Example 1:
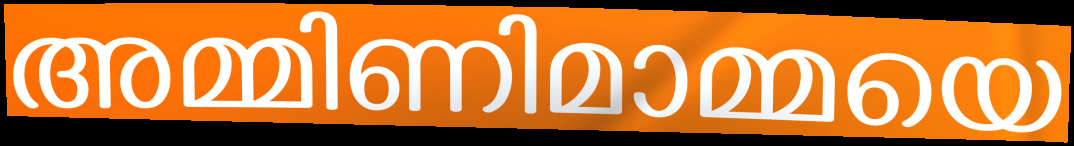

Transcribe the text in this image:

അമ്മിണിമാമ്മയെ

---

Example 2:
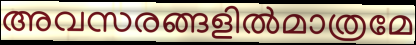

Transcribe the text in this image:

അവസരങ്ങളിൽമാത്രമേ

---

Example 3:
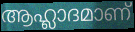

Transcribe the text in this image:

ആഹ്ലാദമാണ്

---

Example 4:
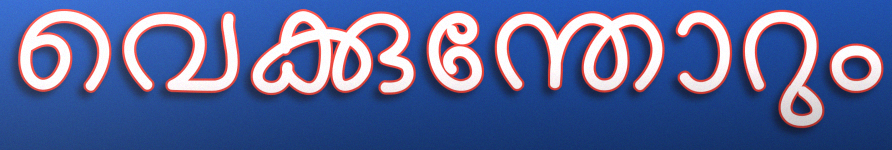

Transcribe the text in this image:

വെക്കുന്തോറും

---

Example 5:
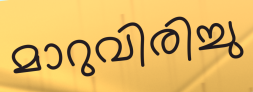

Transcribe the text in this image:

മാറുവിരിച്ചു